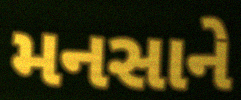
મનસાને